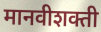
मानवीशक्ती